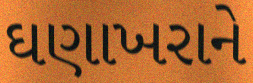
ઘણાખરાને